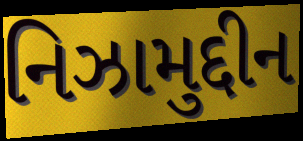
નિઝામુદ્દીન